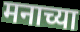
मनाच्या